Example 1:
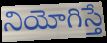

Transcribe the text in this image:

నియోగిస్తే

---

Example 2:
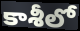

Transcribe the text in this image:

కాశీలో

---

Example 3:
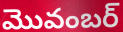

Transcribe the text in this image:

మొవంబర్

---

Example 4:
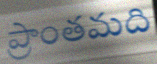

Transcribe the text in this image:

ప్రాంతమది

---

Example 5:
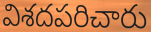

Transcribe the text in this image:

విశదపరిచారు